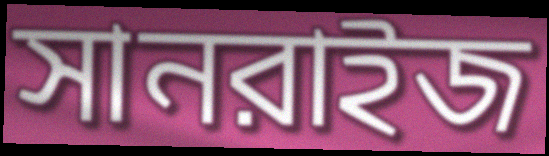
সানরাইজ